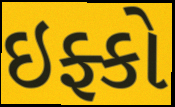
ઇફ્કો